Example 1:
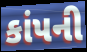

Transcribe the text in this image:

કાંપની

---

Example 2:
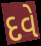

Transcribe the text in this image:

દવે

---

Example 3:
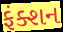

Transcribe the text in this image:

ફંક્શન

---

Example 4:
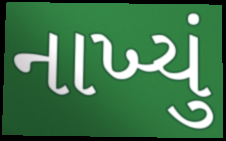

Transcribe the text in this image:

નાખ્યું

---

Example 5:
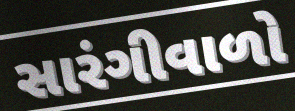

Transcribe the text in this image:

સારંગીવાળો